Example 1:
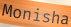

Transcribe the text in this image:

Monisha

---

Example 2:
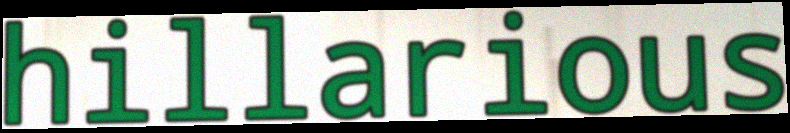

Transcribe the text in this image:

hillarious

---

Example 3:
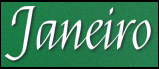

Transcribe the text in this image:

Janeiro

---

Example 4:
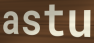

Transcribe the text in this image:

astu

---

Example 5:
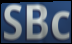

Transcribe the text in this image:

SBc